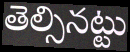
తెల్సినట్టు